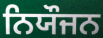
ਨਿਯੌਜਨ